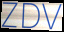
ZDV